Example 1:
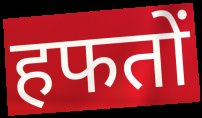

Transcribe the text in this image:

हफतों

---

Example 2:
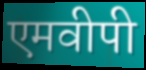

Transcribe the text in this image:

एमवीपी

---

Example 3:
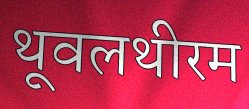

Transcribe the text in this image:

थूवलथीरम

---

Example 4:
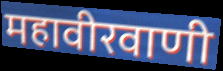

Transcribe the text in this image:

महावीरवाणी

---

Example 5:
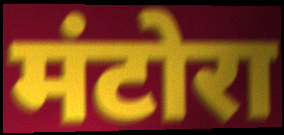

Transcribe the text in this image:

मंटोरा